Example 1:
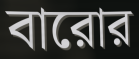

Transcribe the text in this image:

বারোর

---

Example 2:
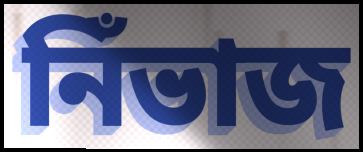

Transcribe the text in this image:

নিঁভাজ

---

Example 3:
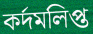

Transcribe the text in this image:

কর্দমলিপ্ত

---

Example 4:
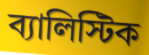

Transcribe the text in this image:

ব্যালিস্টিক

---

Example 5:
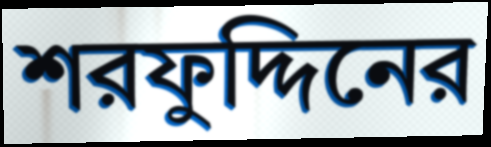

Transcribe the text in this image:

শরফুদ্দিনের